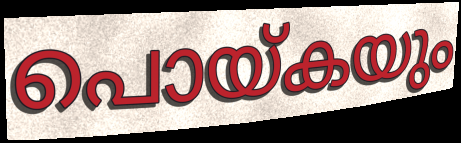
പൊയ്കയും